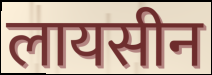
लायसीन